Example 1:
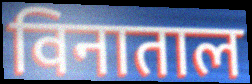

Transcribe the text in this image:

विनाताल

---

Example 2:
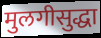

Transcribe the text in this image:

मुलगीसुद्धा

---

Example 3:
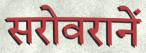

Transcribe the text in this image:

सरोवरानें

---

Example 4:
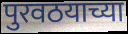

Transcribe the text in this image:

पुरवठयाच्या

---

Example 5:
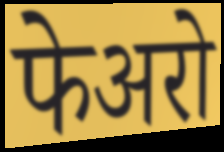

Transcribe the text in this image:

फेअरो